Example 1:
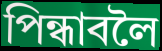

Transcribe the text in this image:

পিন্ধাবলৈ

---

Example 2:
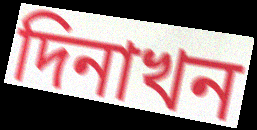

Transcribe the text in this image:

দিনাখন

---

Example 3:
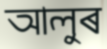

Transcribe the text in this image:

আলুৰ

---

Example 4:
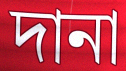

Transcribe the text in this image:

দানা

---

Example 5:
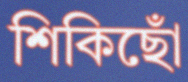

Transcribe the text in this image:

শিকিছোঁ